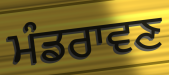
ਮੰਡਰਾਵਣ